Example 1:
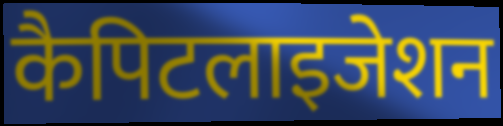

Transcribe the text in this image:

कैपिटलाइजेशन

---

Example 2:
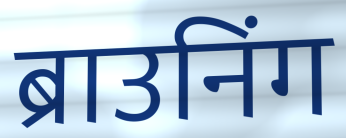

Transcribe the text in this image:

ब्राउनिंग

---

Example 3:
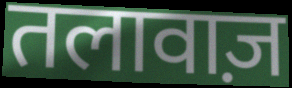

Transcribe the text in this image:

तलावाज़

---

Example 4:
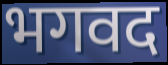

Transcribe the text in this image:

भगवद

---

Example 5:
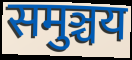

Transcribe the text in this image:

समुञ्चय